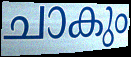
ചാകും